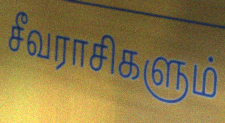
சீவராசிகளும்